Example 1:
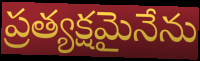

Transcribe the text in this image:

ప్రత్యక్షమైనేను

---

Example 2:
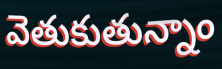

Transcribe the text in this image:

వెతుకుతున్నాం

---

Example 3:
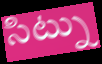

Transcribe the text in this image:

సిట్ను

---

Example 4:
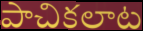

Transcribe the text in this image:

పాచికలాట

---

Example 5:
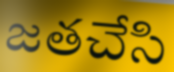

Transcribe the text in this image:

జతచేసి